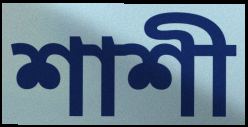
শাশী